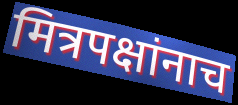
मित्रपक्षांनाच